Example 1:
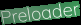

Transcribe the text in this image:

Preloader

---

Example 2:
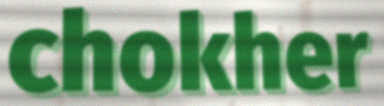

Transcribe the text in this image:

chokher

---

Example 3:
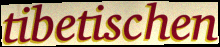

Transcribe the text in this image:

tibetischen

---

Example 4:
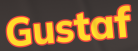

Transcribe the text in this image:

Gustaf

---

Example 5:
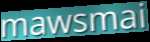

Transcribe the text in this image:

mawsmai